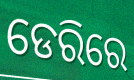
ଡେରିରେ